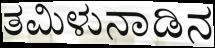
ತಮಿಳುನಾಡಿನ